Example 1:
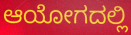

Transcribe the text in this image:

ಆಯೋಗದಲ್ಲಿ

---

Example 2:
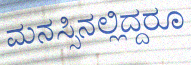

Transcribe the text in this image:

ಮನಸ್ಸಿನಲ್ಲಿದ್ದರೂ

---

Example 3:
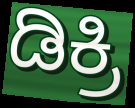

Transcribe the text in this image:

ಡಿಕ್ರಿ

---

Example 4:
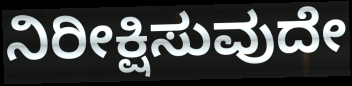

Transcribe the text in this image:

ನಿರೀಕ್ಷಿಸುವುದೇ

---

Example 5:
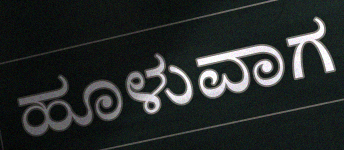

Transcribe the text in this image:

ಹೂಳುವಾಗ